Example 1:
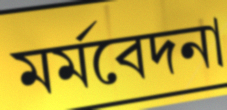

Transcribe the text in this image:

মৰ্মবেদনা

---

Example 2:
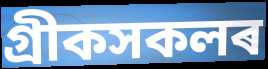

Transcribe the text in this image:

গ্ৰীকসকলৰ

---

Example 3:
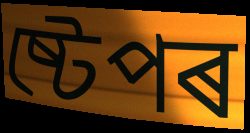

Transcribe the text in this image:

ষ্টেপৰ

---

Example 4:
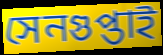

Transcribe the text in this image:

সেনগুপ্তাই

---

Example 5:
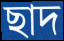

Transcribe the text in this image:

ছাদ